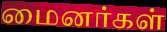
மைனர்கள்